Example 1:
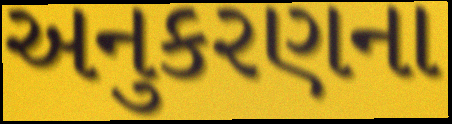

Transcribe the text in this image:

અનુકરણના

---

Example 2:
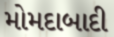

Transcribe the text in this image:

મોમદાબાદી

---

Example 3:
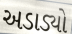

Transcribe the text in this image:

અડાડ્યો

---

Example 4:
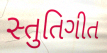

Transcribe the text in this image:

સ્તુતિગીત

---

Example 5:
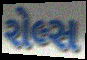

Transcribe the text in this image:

રોલ્સ